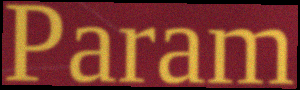
Param